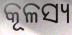
କୂଳସ୍ଯ